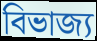
বিভাজ্য